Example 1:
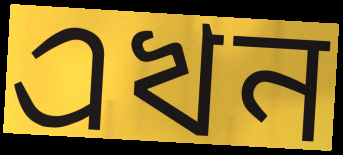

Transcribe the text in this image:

এখন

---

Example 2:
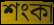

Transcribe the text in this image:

শংকা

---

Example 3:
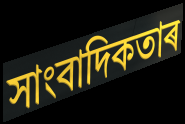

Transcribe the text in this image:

সাংবাদিকতাৰ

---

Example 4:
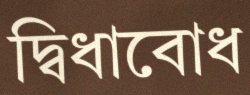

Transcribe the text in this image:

দ্বিধাবোধ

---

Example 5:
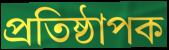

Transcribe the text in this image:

প্ৰতিষ্ঠাপক